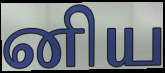
னிய